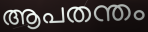
ആപതന്തം